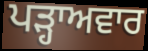
ਪੜ੍ਹਾਅਵਾਰ